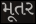
મૂતર